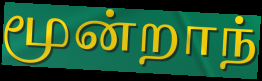
மூன்றாந்